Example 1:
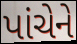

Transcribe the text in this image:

પાંચેને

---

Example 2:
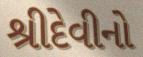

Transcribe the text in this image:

શ્રીદેવીનો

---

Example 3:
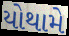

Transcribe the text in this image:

યોથામે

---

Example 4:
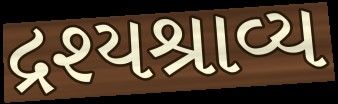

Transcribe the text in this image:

દ્રશ્યશ્રાવ્ય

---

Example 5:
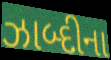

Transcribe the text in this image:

ઝાબ્દીના